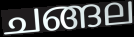
ചങ്ങല